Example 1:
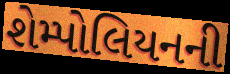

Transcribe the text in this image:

શેમ્પોલિયનની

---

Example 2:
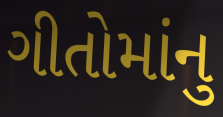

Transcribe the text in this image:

ગીતોમાંનુ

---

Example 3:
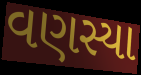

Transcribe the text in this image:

વણસ્યા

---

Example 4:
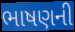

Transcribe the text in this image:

ભાષણની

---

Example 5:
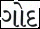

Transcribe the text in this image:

ગોદ